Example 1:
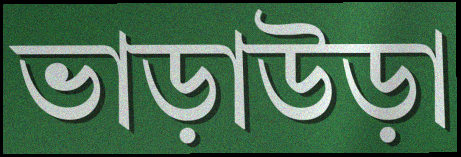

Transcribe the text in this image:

ভাড়াউড়া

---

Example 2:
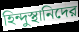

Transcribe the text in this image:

হিন্দুস্থানিদের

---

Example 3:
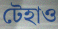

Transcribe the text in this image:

টেহাও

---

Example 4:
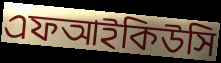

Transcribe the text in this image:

এফআইকিউসি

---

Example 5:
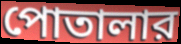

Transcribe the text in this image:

পোতালার